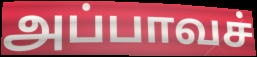
அப்பாவச்